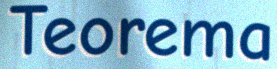
Teorema